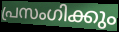
പ്രസംഗിക്കും